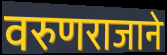
वरुणराजाने